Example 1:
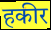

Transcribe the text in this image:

हकीर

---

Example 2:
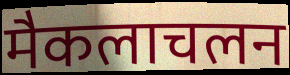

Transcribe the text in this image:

मैकलाचलन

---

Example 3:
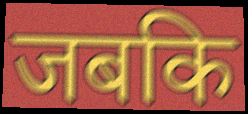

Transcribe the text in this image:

जबकि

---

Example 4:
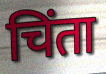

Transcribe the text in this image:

चिंता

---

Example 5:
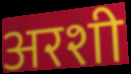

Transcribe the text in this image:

अरशी